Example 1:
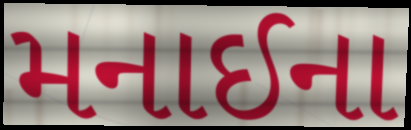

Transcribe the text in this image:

મનાઈના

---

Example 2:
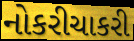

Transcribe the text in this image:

નોકરીચાકરી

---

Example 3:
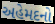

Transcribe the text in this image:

અહેમદનો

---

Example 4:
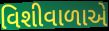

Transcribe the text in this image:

વિશીવાળાએ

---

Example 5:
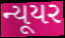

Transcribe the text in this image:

ન્યૂયર